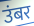
उंबर